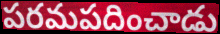
పరమపదించాడు